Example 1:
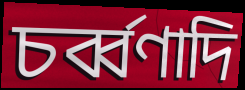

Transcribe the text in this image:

চর্ব্বণাদি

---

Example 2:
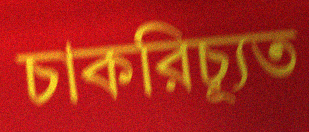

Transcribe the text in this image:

চাকরিচ্যূত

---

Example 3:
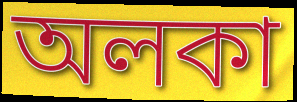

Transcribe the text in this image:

অলকা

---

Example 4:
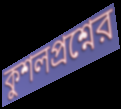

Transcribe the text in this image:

কুশলপ্রশ্নের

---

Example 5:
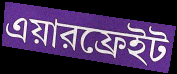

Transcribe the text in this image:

এয়ারফ্রেইট